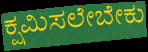
ಕ್ಷಮಿಸಲೇಬೇಕು